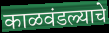
काळवंडल्याचे